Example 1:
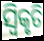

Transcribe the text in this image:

ସ୍ୱିକୃତି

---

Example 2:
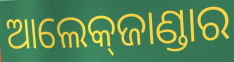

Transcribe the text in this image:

ଆଲେକ୍‌ଜାଣ୍ଡାର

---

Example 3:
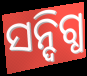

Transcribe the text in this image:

ସନ୍ଦିଗ୍ଧ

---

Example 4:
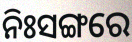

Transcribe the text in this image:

ନିଃସଙ୍ଗରେ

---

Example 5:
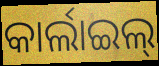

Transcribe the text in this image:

କାର୍ଲାଇଲ୍